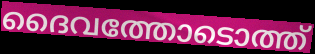
ദൈവത്തോടൊത്ത്